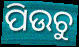
ପିଉଚୁ